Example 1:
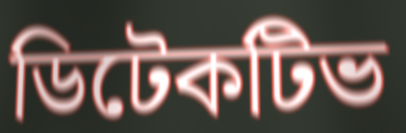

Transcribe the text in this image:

ডিটেকটিভ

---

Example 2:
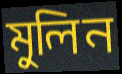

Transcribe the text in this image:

মুলিন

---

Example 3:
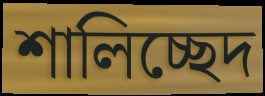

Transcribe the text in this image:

শালিচ্ছেদ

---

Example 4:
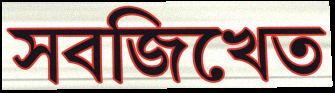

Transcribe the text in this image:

সবজিখেত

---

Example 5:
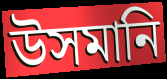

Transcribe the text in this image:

উসমানি